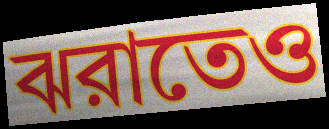
ঝরাতেও